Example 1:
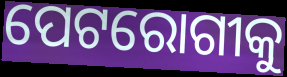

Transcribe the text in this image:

ପେଟରୋଗୀକୁ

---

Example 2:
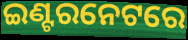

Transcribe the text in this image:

ଇଣ୍ଟରନେଟରେ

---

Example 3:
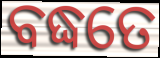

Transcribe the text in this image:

ବଦ୍ଧତେ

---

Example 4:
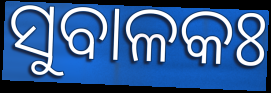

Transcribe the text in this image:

ସୁବାଳକଃ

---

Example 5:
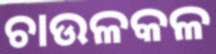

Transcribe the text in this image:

ଚାଉଳକଳ